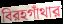
বিরহগাঁথার